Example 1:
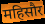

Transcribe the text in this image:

महिसौर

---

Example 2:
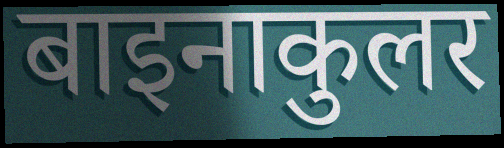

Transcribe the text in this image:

बाइनाकुलर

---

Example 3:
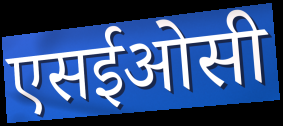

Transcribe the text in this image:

एसईओसी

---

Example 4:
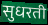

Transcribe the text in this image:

सुधरती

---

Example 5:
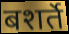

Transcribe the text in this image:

बशर्ते